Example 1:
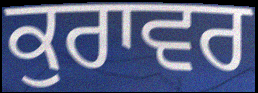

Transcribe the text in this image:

ਕੁਰਾਵਰ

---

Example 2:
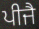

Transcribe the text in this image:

ਪੀਜੈ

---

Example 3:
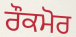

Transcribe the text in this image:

ਰੌਕਮੋਰ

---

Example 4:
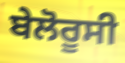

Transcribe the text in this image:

ਬੇਲੋਰੂਸੀ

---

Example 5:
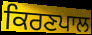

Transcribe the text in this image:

ਕਿਰਣਪਾਲ